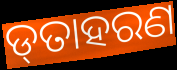
ଡ୍‌ତାହରଣ